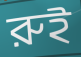
ৰুই